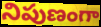
నిపుణంగా